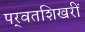
पर्वतशिखरीं